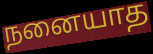
நனையாத